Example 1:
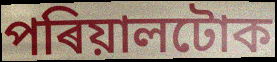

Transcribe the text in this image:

পৰিয়ালটোক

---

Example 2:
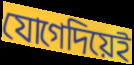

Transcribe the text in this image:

যোগেদিয়েই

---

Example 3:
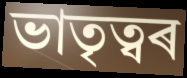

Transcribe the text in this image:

ভাতৃত্বৰ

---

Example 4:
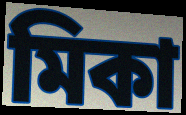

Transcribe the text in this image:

মিকা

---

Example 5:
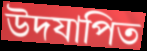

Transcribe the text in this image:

উদযাপিত